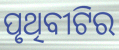
ପୃଥିବୀଟିର